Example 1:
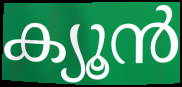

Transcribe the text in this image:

ക്യൂൻ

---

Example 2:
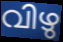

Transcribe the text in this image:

വിഴു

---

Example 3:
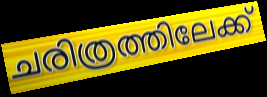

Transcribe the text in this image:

ചരിത്രത്തിലേക്ക്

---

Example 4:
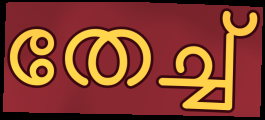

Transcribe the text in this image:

തേച്ച്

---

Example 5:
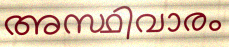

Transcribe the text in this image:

അസ്ഥിവാരം